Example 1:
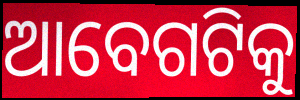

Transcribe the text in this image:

ଆବେଗଟିକୁ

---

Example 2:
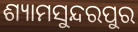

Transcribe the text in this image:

ଶ୍ୟାମସୁନ୍ଦରପୁର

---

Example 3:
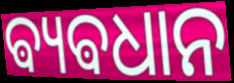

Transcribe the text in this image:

ଵ୍ୟଵଧାନ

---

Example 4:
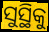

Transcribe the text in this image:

ସୁସ୍ଥିକୁ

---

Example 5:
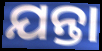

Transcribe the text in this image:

ଯନ୍ତା